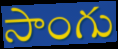
సాంగు